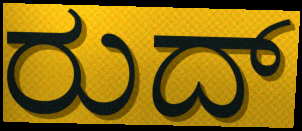
ರುದ್